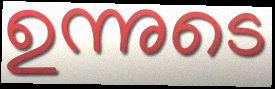
ഉന്നുടെ